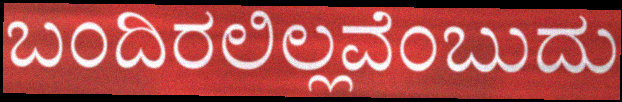
ಬಂದಿರಲಿಲ್ಲವೆಂಬುದು